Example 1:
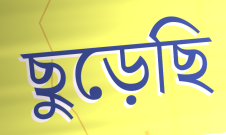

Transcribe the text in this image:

ছুড়েছি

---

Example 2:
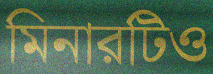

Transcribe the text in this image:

মিনারটিও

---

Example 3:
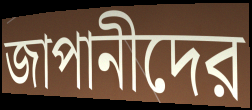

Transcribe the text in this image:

জাপানীদের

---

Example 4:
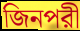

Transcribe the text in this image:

জিনপরী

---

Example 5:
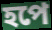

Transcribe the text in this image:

হপে